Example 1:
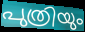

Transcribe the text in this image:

പുത്രിയും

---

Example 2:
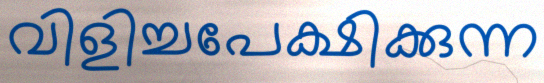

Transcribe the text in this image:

വിളിച്ചപേക്ഷിക്കുന്ന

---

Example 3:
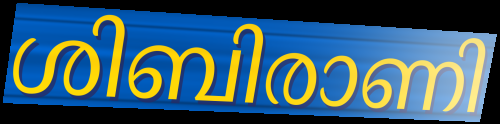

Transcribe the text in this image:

ശിബിരാണി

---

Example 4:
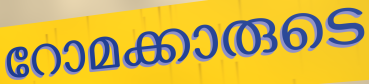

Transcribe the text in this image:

റോമക്കാരുടെ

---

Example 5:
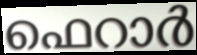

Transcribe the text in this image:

ഫെറാർ